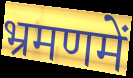
भ्रमणमें